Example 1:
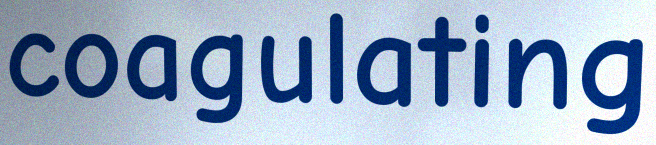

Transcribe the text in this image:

coagulating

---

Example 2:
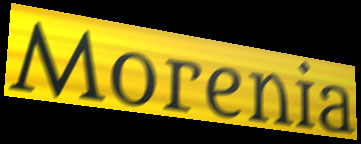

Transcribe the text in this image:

Morenia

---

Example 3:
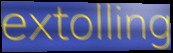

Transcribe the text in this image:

extolling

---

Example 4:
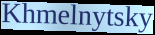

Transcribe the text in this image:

Khmelnytsky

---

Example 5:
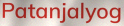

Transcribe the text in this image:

Patanjalyog